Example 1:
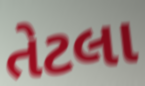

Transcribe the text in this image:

તેટલા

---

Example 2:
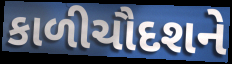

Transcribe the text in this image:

કાળીચૌદશને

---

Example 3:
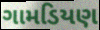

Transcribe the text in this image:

ગામડિયણ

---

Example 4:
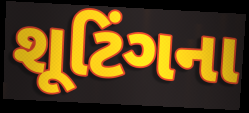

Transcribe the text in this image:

શૂટિંગના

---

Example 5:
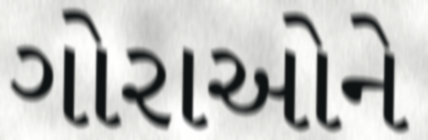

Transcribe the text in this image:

ગોરાઓને